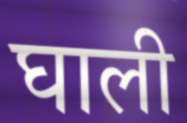
घाली